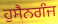
ਹੁਸੈਨਗੰਜ